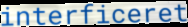
interficeret